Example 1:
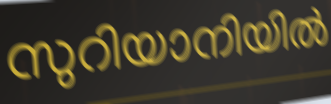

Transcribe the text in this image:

സുറിയാനിയിൽ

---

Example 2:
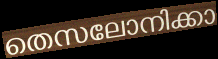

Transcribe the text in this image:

തെസലോനിക്കാ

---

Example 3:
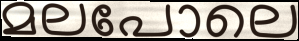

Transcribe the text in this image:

മലപോലെ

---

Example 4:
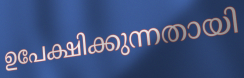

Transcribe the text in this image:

ഉപേക്ഷിക്കുന്നതായി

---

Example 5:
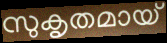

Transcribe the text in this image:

സുകൃതമായ്